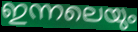
ഇന്നലെയും